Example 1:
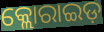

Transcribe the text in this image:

କ୍ଲୋରାଇଡ଼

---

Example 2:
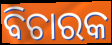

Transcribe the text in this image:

ବିଚାରକ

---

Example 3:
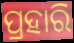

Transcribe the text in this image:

ପ୍ରହାରି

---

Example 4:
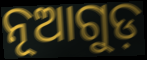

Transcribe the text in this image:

ନୂଆଗୁଡ଼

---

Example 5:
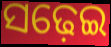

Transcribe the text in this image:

ସଢ଼େଇ